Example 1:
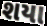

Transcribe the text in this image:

શયા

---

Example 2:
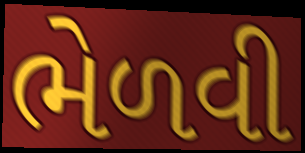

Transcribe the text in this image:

ભેળવી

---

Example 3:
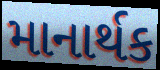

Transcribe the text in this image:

માનાર્થક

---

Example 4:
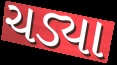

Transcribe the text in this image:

ચડ્યા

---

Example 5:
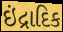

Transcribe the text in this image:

ઇંદ્રાદિક